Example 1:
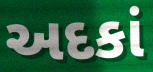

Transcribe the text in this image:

અદકાં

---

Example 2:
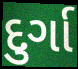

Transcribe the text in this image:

દુર્ગા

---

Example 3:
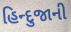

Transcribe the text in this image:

હિન્દુજાની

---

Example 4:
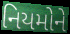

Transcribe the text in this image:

નિયમોને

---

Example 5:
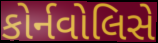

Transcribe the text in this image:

કોર્નવોલિસે